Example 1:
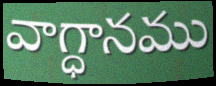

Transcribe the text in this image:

వాగ్ధానము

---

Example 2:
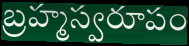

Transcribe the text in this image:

బ్రహ్మస్వరూపం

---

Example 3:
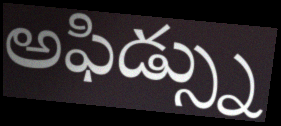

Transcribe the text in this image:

అఫిడ్స్ను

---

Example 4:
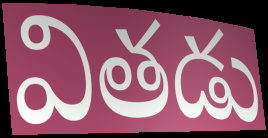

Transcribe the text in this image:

వితడు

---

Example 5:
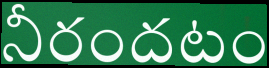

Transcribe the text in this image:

నీరందటం